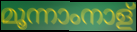
മൂന്നാംനാള്